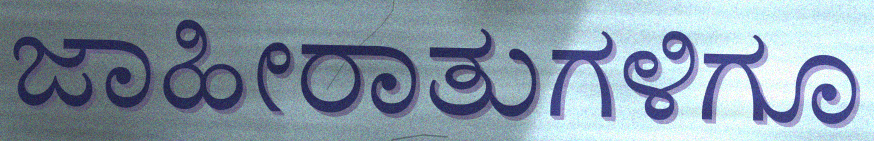
ಜಾಹೀರಾತುಗಳಿಗೂ